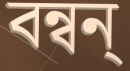
বন্বন্